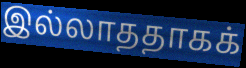
இல்லாததாகக்